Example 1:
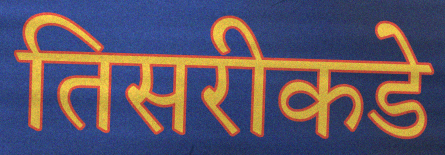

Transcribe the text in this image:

तिसरीकडे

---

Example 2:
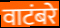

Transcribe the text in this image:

वाटंबरे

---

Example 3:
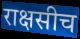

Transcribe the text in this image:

राक्षसीच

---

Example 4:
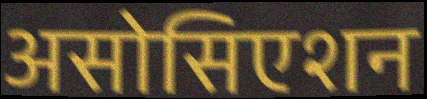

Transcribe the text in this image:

असोसिएशन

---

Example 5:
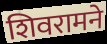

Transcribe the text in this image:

शिवरामने